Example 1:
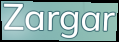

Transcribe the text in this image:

Zargar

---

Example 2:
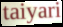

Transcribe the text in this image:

taiyari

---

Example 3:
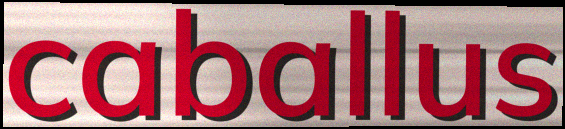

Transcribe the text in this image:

caballus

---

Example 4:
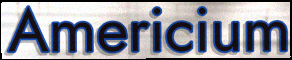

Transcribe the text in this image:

Americium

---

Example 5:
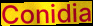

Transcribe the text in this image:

Conidia